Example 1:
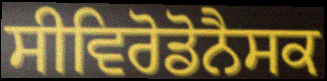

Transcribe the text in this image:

ਸੀਵਿਰੋਡੋਨੈਸਕ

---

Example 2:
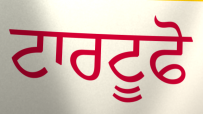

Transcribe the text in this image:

ਟਾਰਟੂਫੋ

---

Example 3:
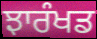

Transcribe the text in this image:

ਝਾਰੰਖਡ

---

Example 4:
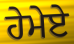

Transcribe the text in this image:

ਹੇਮੇਏ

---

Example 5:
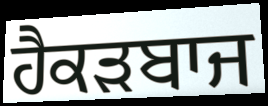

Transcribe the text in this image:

ਹੈਕੜਬਾਜ